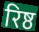
रिष्ठ